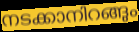
നടക്കാനിറങ്ങും